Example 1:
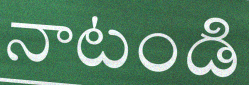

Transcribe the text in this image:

నాటండి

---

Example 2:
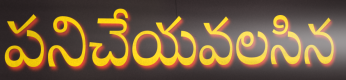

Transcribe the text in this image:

పనిచేయవలసిన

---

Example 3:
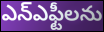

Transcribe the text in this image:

ఎన్ఎఫ్టీలను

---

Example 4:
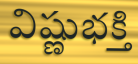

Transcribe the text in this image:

విష్ణుభక్తి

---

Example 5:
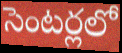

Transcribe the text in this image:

సెంటర్లలో